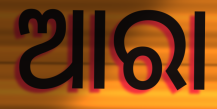
ଆରା